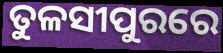
ତୁଳସୀପୁରରେ